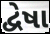
દ્વેષા